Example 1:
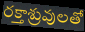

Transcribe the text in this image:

రక్తాశ్రువులతో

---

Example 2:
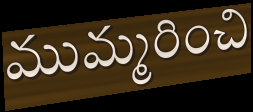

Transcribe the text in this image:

ముమ్మరించి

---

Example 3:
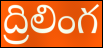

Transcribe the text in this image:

ద్రిలింగ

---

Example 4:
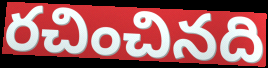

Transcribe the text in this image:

రచించినది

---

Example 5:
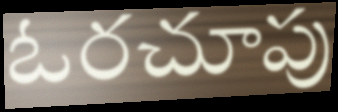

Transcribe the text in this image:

ఓరచూపు